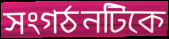
সংগঠনটিকে